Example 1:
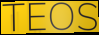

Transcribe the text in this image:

TEOS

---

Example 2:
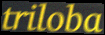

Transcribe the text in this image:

triloba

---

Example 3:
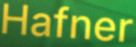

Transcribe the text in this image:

Hafner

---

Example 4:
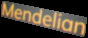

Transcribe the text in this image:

Mendelian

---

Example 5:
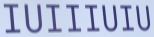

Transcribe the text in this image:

IUIIIUIU